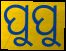
ପୁପୁ